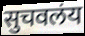
सुचवलंय